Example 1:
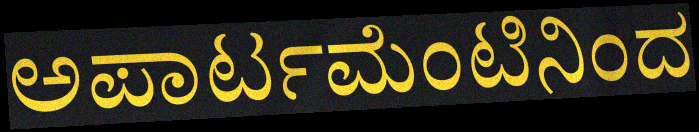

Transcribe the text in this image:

ಅಪಾರ್ಟಮೆಂಟಿನಿಂದ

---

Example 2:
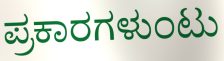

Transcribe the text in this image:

ಪ್ರಕಾರಗಳುಂಟು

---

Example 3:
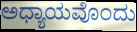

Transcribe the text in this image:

ಅಧ್ಯಾಯವೊಂದು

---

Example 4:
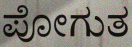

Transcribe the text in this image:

ಪೋಗುತ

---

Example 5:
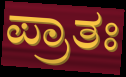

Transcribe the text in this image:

ಪ್ರಾತಃ